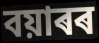
বয়াৰৰ